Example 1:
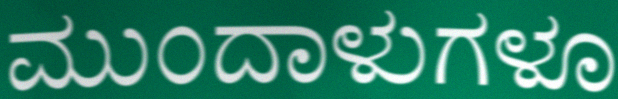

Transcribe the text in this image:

ಮುಂದಾಳುಗಳೂ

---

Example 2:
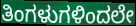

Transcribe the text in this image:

ತಿಂಗಳುಗಳಿಂದಲೇ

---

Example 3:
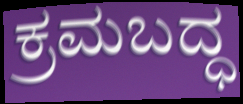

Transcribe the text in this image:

ಕ್ರಮಬದ್ಧ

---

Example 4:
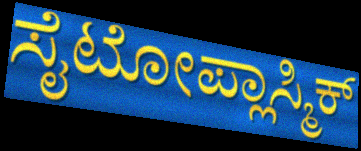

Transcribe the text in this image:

ಸೈಟೋಪ್ಲಾಸ್ಮಿಕ್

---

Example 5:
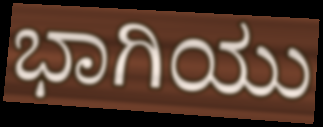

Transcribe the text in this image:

ಭಾಗಿಯು